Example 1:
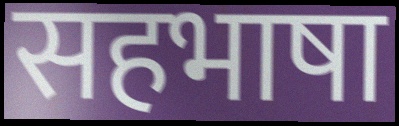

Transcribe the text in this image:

सहभाषा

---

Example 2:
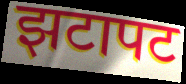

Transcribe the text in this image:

झटापट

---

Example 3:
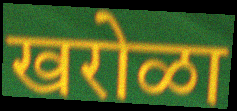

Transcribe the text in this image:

खरोळा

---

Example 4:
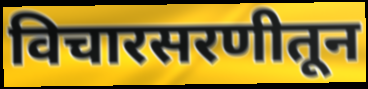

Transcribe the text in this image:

विचारसरणीतून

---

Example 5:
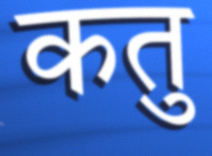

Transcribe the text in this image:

कतु